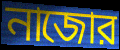
নাজোর